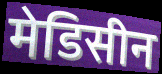
मेडिसीन